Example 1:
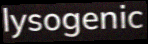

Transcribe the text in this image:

lysogenic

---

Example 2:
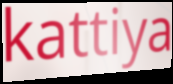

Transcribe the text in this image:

kattiya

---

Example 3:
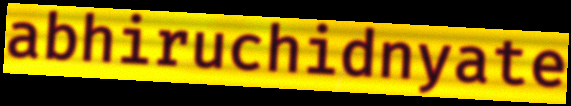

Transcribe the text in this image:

abhiruchidnyate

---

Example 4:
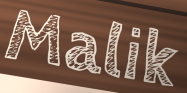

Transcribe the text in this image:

Malik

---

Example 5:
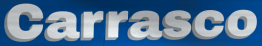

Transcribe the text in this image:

Carrasco